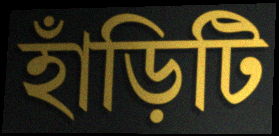
হাঁড়িটি